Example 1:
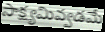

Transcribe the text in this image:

సాక్ష్యమివ్వడమే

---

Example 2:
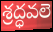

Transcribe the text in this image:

శ్రద్ధవలె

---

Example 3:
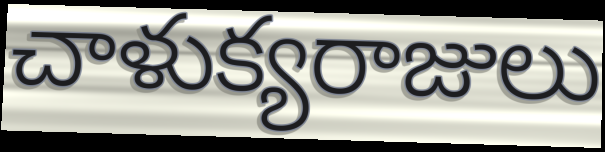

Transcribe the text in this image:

చాళుక్యరాజులు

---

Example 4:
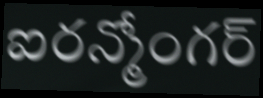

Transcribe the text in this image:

ఐరన్మోంగర్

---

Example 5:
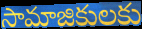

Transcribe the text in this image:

సామాజికులకు